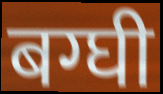
बग्घी